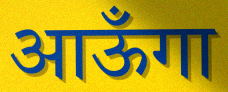
आऊँगा